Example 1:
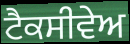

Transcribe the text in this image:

ਟੈਕਸੀਵੇਅ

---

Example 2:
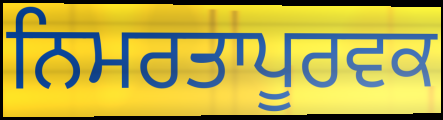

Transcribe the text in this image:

ਨਿਮਰਤਾਪੂਰਵਕ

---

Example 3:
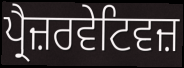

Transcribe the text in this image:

ਪ੍ਰੈਜ਼ਰਵੇਟਿਵਜ਼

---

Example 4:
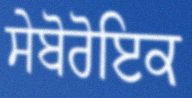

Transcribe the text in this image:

ਸੇਬੋਰੋਇਕ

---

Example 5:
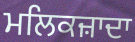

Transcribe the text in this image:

ਮਲਿਕਜ਼ਾਦਾ